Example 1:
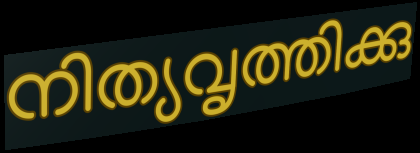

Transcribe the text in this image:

നിത്യവൃത്തിക്കു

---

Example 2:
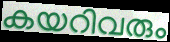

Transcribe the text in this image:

കയറിവരും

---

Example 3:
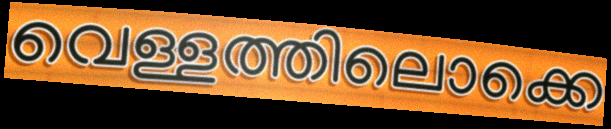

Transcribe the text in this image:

വെള്ളത്തിലൊക്കെ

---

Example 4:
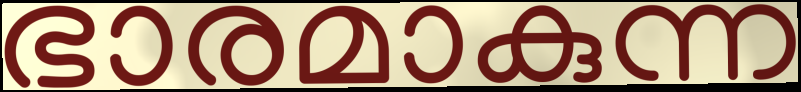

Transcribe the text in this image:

ഭാരമാകുന്ന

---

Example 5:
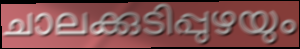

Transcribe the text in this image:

ചാലക്കുടിപ്പുഴയും